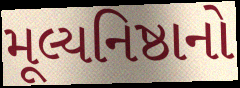
મૂલ્યનિષ્ઠાનો